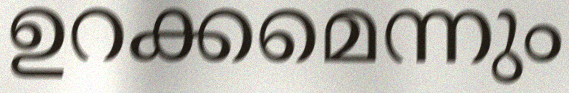
ഉറക്കമെന്നും